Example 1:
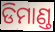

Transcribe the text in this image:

ଡିମାଣ୍ଡ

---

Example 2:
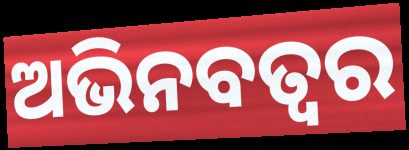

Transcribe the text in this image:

ଅଭିନବତ୍ୱର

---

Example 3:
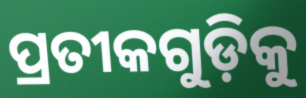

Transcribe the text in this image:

ପ୍ରତୀକଗୁଡ଼ିକୁ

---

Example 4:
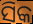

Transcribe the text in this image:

ସିକ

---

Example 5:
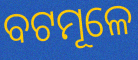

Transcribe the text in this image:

ବଟମୂଳେ